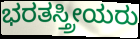
ಭರತಸ್ತ್ರೀಯರು